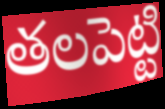
తలపెట్టి